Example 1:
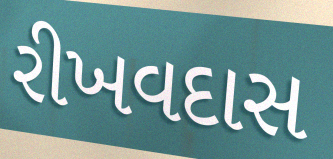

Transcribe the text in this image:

રીખવદાસ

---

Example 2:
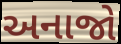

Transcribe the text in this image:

અનાજો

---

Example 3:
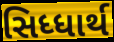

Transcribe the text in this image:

સિધ્ધાર્થ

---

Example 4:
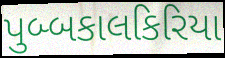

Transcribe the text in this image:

પુબ્બકાલકિરિયા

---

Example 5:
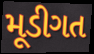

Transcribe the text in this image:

મૂડીગત